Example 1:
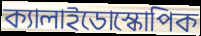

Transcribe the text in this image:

ক্যালাইডোস্কোপিক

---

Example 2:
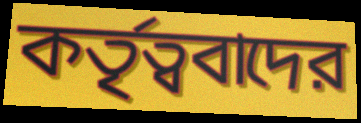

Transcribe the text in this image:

কর্তৃত্ববাদের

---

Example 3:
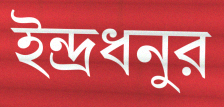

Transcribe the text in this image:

ইন্দ্রধনুর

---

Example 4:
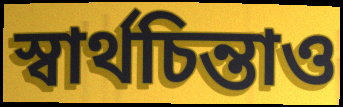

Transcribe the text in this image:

স্বার্থচিন্তাও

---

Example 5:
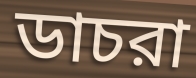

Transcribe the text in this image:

ডাচরা